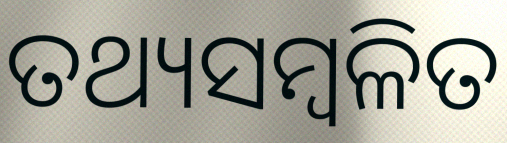
ତଥ୍ୟସମ୍ବଳିତ